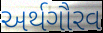
અર્થગૌરવ